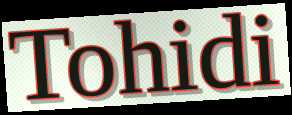
Tohidi